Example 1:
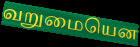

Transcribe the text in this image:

வறுமையென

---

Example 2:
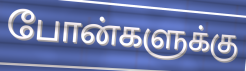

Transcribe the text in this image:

போன்களுக்கு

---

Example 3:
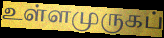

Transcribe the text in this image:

உள்ளமுருகப்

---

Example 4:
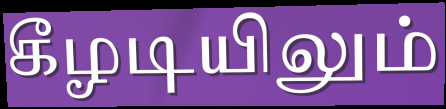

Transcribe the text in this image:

கீழடியிலும்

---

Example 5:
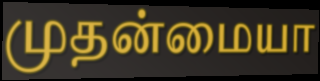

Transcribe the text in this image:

முதன்மையா